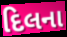
દિલના